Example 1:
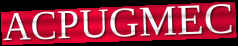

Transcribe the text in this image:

ACPUGMEC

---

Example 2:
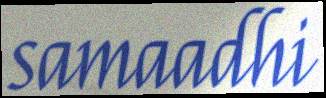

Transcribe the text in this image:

samaadhi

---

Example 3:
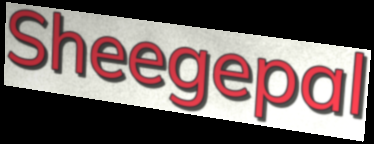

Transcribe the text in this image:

Sheegepal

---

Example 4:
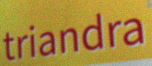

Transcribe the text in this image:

triandra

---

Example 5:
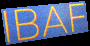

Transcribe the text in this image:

IBAF